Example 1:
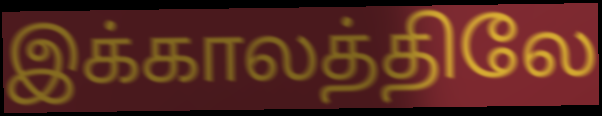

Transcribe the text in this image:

இக்காலத்திலே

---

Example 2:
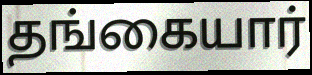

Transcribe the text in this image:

தங்கையார்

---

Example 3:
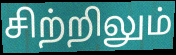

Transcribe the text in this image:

சிற்றிலும்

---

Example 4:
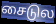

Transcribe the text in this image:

சைடுல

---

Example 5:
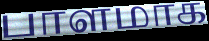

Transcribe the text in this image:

பாளமாக